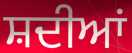
ਸ਼ਦੀਆਂ